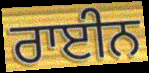
ਰਾਈਨ